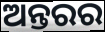
ଅନ୍ତରର